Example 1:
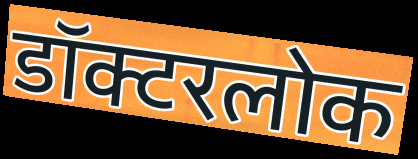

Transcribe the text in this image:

डॉक्टरलोक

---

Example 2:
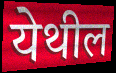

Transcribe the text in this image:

येथील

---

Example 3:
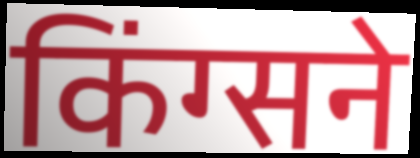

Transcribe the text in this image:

किंग्सने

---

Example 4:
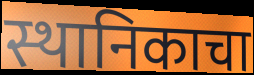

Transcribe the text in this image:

स्थानिकाचा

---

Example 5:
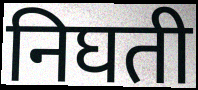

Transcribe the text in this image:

निघती